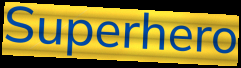
Superhero